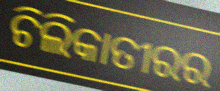
ଚିଲିକାତୀରର